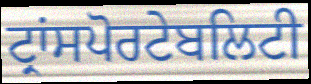
ਟ੍ਰਾਂਸਪੋਰਟੇਬਲਿਟੀ